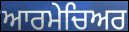
ਆਰਮੇਚਿਅਰ